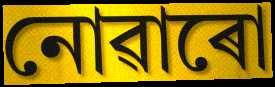
নোৱাৰো